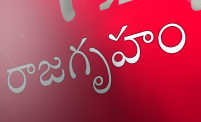
రాజగృహం